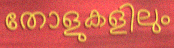
തോളുകളിലും